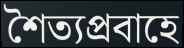
শৈত্যপ্রবাহে